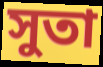
সুতা